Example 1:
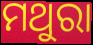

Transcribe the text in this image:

ମଥୁରା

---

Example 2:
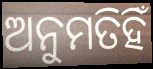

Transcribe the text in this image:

ଅନୁମତିହିଁ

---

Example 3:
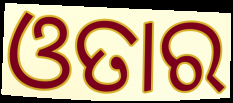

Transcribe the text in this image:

ଓତାର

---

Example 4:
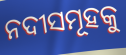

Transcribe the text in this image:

ନଦୀସମୂହକୁ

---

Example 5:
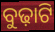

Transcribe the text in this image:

ବୁଢ଼ାଟି